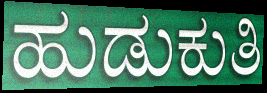
ಹುಡುಕುತಿ